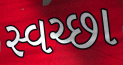
સ્વચ્છા